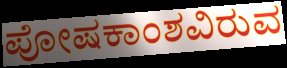
ಪೋಷಕಾಂಶವಿರುವ